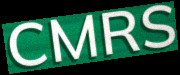
CMRS